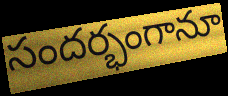
సందర్భంగానూ